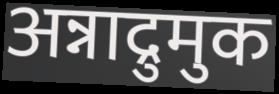
अन्नाद्रुमुक